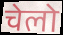
चेलो